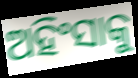
ଅହିଂସାକୁ